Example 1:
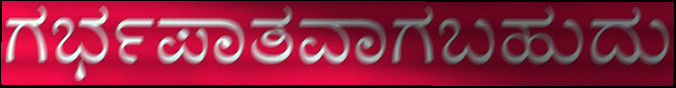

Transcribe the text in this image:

ಗರ್ಭಪಾತವಾಗಬಹುದು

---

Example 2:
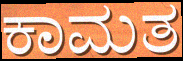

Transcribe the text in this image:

ಕಾಮತ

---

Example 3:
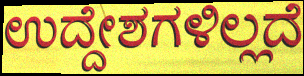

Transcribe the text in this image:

ಉದ್ದೇಶಗಳಿಲ್ಲದೆ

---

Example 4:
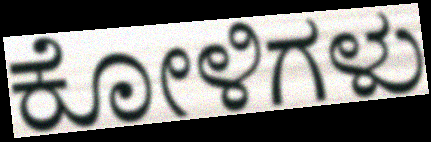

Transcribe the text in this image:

ಕೋಳಿಗಳು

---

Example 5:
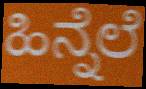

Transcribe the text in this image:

ಹಿನ್ನೆಲೆ